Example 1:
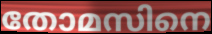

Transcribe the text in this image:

തോമസിനെ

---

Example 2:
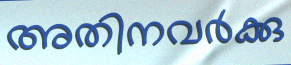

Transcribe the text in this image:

അതിനവർക്കു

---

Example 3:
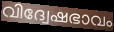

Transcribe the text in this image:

വിദ്വേഷഭാവം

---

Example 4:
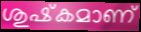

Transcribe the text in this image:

ശുഷ്‌കമാണ്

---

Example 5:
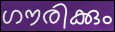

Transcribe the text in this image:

ഗൗരിക്കും